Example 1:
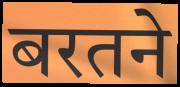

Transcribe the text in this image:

बरतने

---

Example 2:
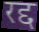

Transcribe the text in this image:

रद्द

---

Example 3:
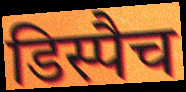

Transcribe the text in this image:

डिस्पैच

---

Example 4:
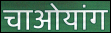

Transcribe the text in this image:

चाओयांग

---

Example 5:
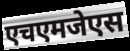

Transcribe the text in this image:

एचएमजेएस